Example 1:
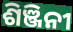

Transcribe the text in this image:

ଶିଞ୍ଜିନୀ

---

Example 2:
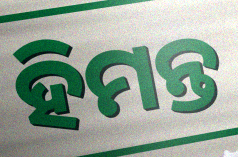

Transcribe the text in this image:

ହିମନ୍ତ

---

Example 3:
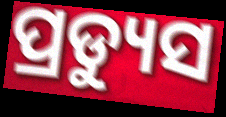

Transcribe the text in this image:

ପ୍ରଡ୍ୟୁସ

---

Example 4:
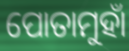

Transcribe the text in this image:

ପୋତାମୁହାଁ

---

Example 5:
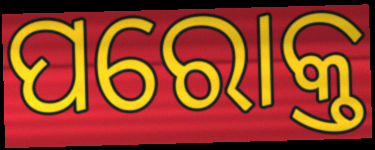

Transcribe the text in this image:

ପରୋକ୍ତ